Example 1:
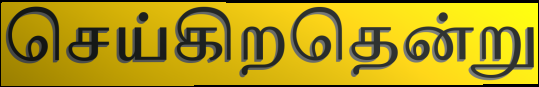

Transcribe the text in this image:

செய்கிறதென்று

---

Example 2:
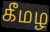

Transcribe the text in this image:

கீமழ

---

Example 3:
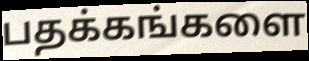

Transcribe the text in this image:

பதக்கங்களை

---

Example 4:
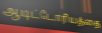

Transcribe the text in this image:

ஆடிட்டோரியத்தை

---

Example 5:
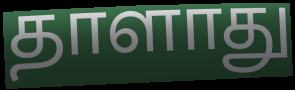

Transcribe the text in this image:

தாளாது